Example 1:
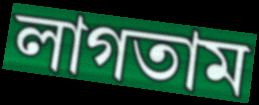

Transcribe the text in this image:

লাগতাম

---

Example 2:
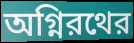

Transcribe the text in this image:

অগ্নিরথের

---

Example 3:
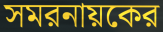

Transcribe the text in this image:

সমরনায়কের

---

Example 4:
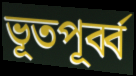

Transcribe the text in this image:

ভূতপূর্ব্ব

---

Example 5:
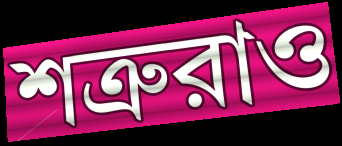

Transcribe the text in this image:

শত্রুরাও